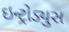
ઇન્ટ્રોડ્યુસ